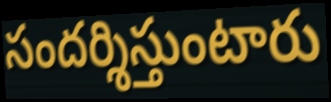
సందర్శిస్తుంటారు